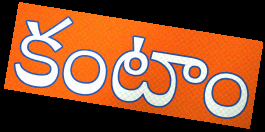
కంటాం